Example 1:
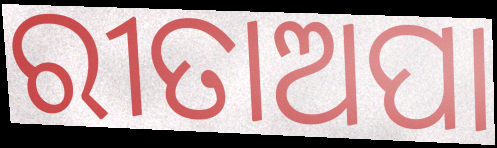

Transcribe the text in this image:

ରୀତାଅପା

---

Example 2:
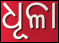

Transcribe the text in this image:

ଧୂଳା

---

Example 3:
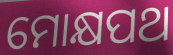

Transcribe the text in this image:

ମୋକ୍ଷପଥ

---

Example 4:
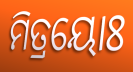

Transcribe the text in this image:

ମିତ୍ରୟୋଃ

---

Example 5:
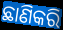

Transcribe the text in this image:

ଛାଣିକରି